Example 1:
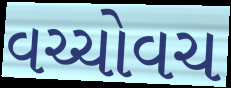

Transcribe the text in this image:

વચ્ચોવચ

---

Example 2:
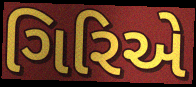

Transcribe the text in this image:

ગિરિએ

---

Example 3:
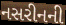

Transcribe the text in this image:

નસરીનની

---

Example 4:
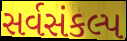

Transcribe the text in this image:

સર્વસંકલ્પ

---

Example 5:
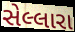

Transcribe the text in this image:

સેલ્લારા